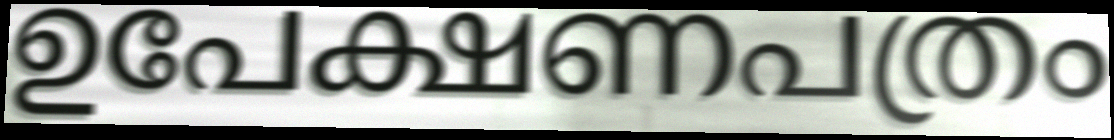
ഉപേക്ഷണപത്രം